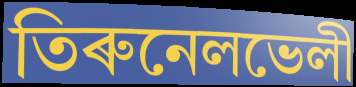
তিৰুনেলভেলী